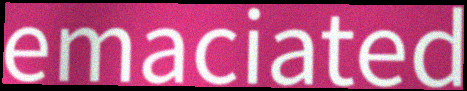
emaciated